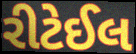
રીટેઈલ